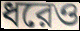
ধরেও